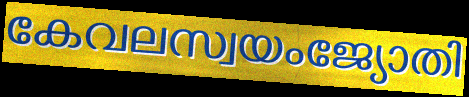
കേവലസ്വയംജ്യോതി